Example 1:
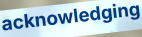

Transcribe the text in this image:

acknowledging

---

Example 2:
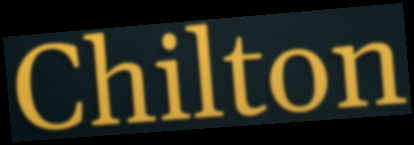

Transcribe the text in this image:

Chilton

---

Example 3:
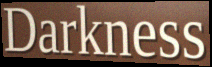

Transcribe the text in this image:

Darkness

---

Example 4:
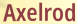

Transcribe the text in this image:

Axelrod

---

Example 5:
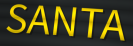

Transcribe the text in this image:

SANTA